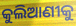
କୁଲିଆଣୀକୁ